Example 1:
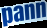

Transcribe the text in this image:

pann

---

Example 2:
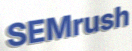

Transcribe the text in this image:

SEMrush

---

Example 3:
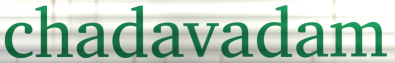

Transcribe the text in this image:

chadavadam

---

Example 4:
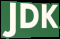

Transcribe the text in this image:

JDK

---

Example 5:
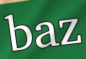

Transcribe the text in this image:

baz